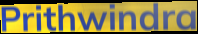
Prithwindra